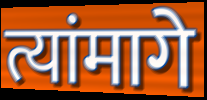
त्यांमागे